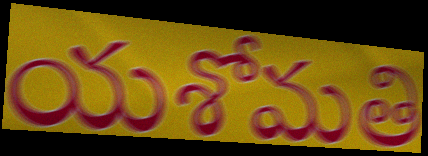
యశోమతి